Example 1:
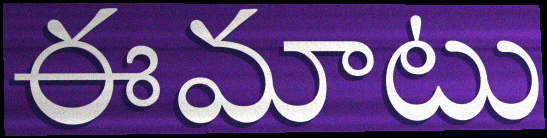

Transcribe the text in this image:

ఈమాటు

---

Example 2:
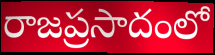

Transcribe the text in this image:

రాజప్రసాదంలో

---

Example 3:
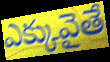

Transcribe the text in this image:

ఎక్కువైతే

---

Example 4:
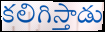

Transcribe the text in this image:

కలిగిస్తాడు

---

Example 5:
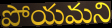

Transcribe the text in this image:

పోయమని